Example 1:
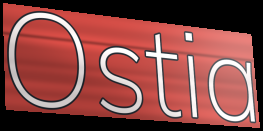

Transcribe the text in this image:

Ostia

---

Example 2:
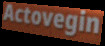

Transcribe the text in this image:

Actovegin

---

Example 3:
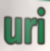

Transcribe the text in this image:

uri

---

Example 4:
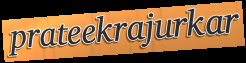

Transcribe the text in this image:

prateekrajurkar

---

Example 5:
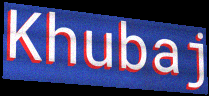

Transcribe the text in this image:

Khubaj